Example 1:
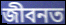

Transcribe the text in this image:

জীবনত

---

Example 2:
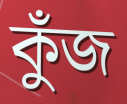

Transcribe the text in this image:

কুঁজ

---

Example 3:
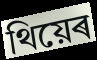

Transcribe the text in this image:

থিয়েৰ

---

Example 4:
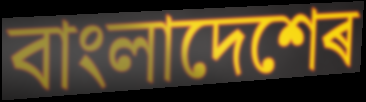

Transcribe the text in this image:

বাংলাদেশেৰ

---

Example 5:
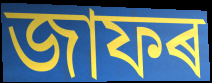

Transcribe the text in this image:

জাফৰ